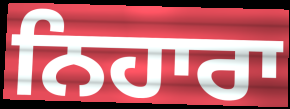
ਨਿਹਾਰਾ